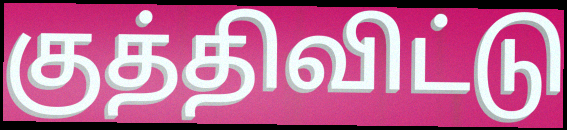
குத்திவிட்டு